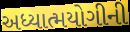
અધ્યાત્મયોગીની